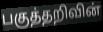
பகுத்தறிவின்